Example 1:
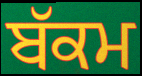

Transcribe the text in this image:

ਬੱਕਮ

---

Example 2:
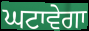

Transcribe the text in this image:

ਘਟਾਵੇਗਾ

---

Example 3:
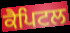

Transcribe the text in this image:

ਕੈਪਿਟਲ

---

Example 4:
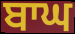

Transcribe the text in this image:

ਬਾਘ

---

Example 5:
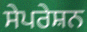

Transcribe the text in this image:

ਸੇਪਰੇਸ਼ਨ